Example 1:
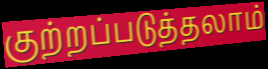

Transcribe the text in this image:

குற்றப்படுத்தலாம்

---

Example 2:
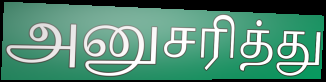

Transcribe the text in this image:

அனுசரித்து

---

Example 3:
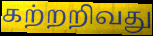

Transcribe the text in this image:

கற்றறிவது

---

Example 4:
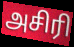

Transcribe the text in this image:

அசிரி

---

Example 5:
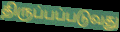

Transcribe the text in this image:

திருப்பப்படுவது